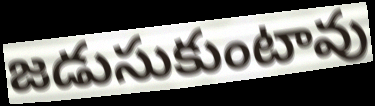
జడుసుకుంటావు